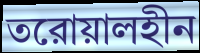
তরোয়ালহীন